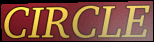
CIRCLE